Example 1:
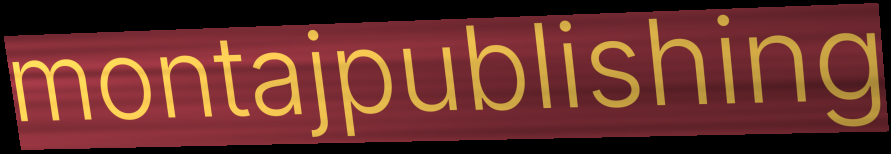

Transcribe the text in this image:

montajpublishing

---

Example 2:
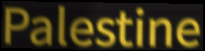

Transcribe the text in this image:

Palestine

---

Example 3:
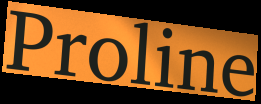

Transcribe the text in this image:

Proline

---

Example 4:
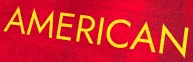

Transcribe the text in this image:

AMERICAN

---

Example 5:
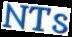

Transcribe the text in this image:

NTs